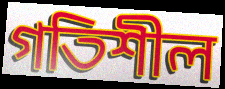
গতিশীল